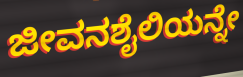
ಜೀವನಶೈಲಿಯನ್ನೇ